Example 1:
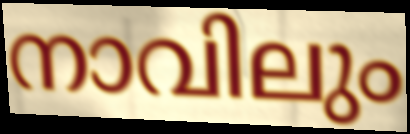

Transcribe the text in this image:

നാവിലും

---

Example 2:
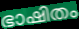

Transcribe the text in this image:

ഭാഷിതം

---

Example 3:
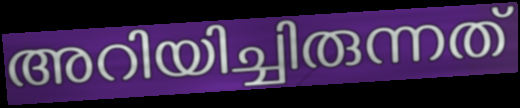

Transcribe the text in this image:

അറിയിച്ചിരുന്നത്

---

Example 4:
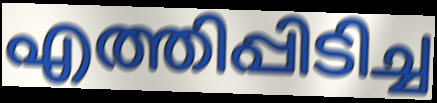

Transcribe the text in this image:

എത്തിപ്പിടിച്ച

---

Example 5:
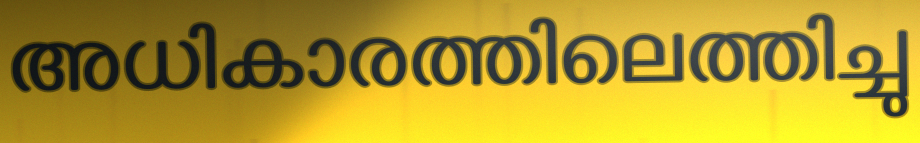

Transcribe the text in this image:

അധികാരത്തിലെത്തിച്ചു